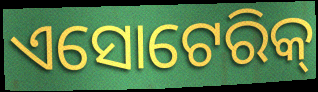
ଏସୋଟେରିକ୍